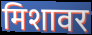
मिशावर